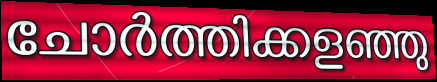
ചോർത്തിക്കളഞ്ഞു